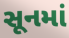
સૂનમાં